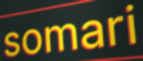
somari